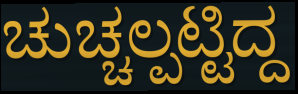
ಚುಚ್ಚಲ್ಪಟ್ಟಿದ್ದ